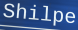
Shilpe